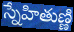
స్నేహితుణ్ణి